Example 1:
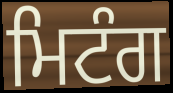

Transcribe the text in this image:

ਮਿਟੰਗ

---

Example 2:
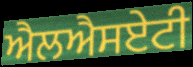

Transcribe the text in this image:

ਐਲਐਸਏਟੀ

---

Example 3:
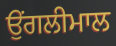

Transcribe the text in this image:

ਉਂਗਲੀਮਾਲ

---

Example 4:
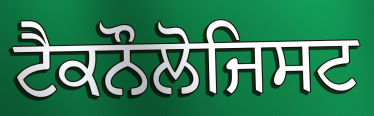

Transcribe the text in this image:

ਟੈਕਨੌਲੋਜਿਸਟ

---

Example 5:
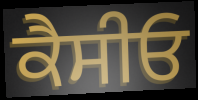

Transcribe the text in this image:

ਕੈਸੀਓ